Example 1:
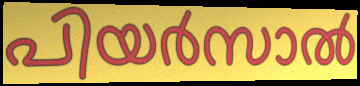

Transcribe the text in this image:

പിയർസാൽ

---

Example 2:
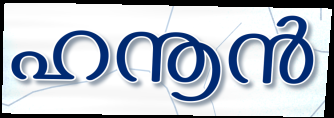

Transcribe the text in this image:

ഹനൂൻ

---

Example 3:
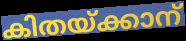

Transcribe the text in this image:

കിതയ്ക്കാന്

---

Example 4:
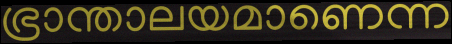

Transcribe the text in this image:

ഭ്രാന്താലയമാണെന്ന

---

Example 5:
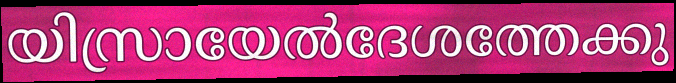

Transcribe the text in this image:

യിസ്രായേൽദേശത്തേക്കു